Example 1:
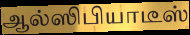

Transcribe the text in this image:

ஆல்ஸிபியாடீஸ்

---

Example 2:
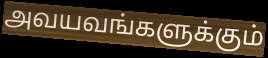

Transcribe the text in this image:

அவயவங்களுக்கும்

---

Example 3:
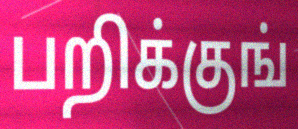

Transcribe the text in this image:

பறிக்குங்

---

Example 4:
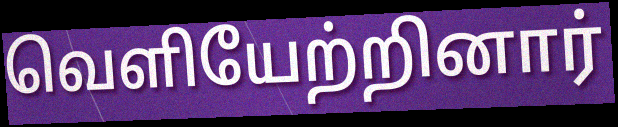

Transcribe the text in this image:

வெளியேற்றினார்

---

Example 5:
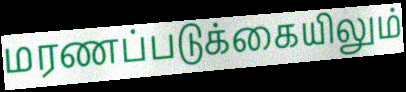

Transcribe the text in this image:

மரணப்படுக்கையிலும்